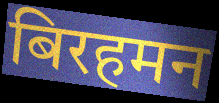
बिरहमन